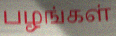
பழங்கள்